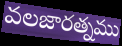
వలజారత్నము